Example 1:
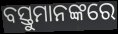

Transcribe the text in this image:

ବସ୍ତୁମାନଙ୍କରେ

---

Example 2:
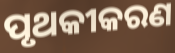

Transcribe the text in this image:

ପୃଥକୀକରଣ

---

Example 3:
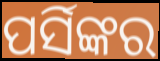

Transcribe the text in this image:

ପର୍ସିଙ୍କର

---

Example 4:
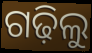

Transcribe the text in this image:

ଗଢ଼ିଲୁ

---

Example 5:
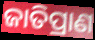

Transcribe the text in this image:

ଜାତିପ୍ରାଣ